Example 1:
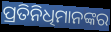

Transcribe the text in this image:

ପ୍ରତିନିଧିମାନଙ୍କର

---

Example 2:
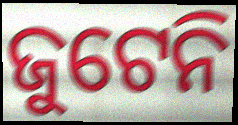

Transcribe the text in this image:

ଜୁଟେନି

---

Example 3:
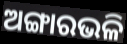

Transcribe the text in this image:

ଅଙ୍ଗାରଭଳି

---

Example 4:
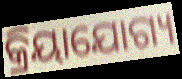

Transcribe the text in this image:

କ୍ରିୟାଯୋଗ୍ୟ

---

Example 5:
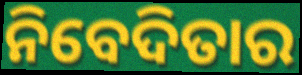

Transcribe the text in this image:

ନିବେଦିତାର